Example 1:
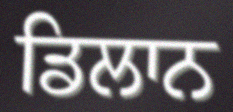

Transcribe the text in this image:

ਡਿਲਾਨ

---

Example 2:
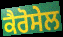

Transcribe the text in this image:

ਕੈਰੋਸੇਲ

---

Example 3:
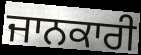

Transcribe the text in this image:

ਜਾਨਕਾਰੀ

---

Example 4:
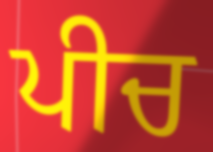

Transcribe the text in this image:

ਪੀਚ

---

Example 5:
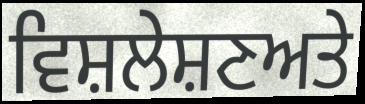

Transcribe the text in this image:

ਵਿਸ਼ਲੇਸ਼ਣਅਤੇ